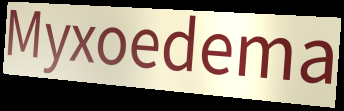
Myxoedema